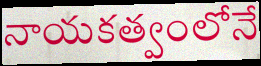
నాయకత్వంలోనే